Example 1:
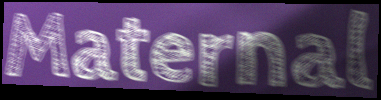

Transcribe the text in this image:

Maternal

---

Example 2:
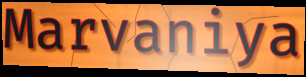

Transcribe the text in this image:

Marvaniya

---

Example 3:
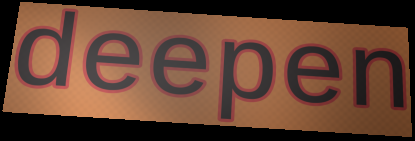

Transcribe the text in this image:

deepen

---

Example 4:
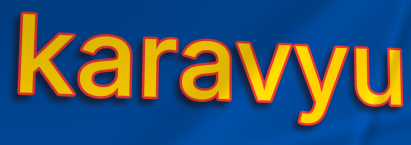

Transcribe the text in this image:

karavyu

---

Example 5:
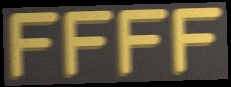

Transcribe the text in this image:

FFFF